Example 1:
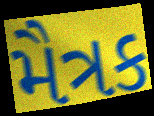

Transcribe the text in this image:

મૈત્રક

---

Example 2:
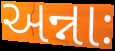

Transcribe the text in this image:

અન્નાઃ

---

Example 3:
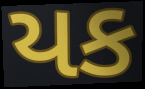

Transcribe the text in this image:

યક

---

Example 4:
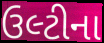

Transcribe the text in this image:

ઉલ્ટીના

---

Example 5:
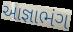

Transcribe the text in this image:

આજ્ઞાભંગ